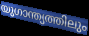
യുഗാന്ത്യത്തിലും